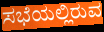
ಸಭೆಯಲ್ಲಿರುವ